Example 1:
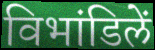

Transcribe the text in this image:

विभांडिलें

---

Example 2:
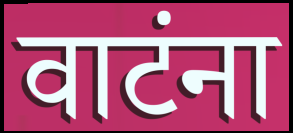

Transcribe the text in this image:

वाटंना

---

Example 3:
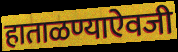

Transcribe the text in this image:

हाताळण्याऐवजी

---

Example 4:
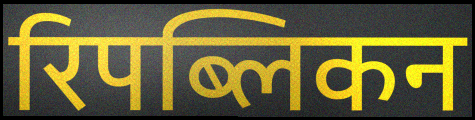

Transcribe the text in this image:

रिपब्लिकन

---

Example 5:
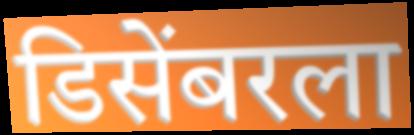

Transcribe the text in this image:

डिसेंबरला